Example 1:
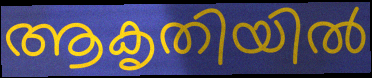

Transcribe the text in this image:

ആകൃതിയിൽ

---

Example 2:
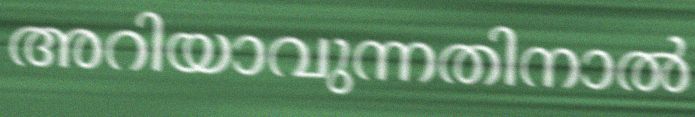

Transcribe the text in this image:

അറിയാവുന്നതിനാൽ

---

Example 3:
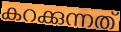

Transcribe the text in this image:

കറക്കുന്നത്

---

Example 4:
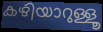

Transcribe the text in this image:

കഴിയാറുള്ളൂ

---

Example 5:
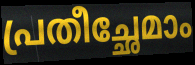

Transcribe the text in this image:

പ്രതീച്ഛേമാം